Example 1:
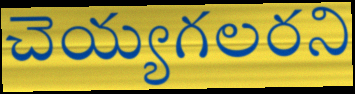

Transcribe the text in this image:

చెయ్యగలరని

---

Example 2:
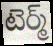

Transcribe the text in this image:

టెర్మ్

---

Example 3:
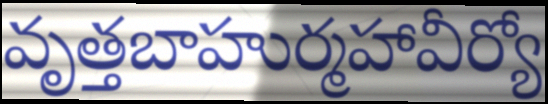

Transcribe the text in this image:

వృత్తబాహుర్మహావీర్యో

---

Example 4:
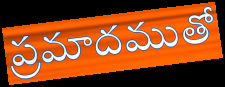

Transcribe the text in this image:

ప్రమాదముతో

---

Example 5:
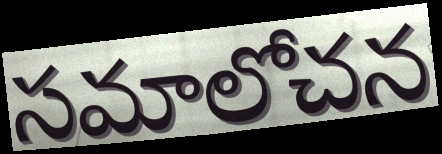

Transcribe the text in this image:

సమాలోచన